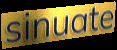
sinuate